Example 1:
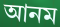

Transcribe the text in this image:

আনম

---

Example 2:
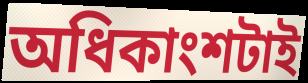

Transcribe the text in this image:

অধিকাংশটাই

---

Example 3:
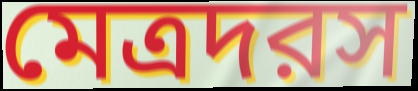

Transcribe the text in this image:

মেত্রদরস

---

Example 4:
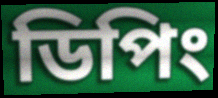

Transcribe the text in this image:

ডিপিং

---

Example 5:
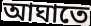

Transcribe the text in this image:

আঘাতে